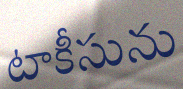
టాకీసును